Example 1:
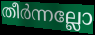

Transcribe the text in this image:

തീർന്നല്ലോ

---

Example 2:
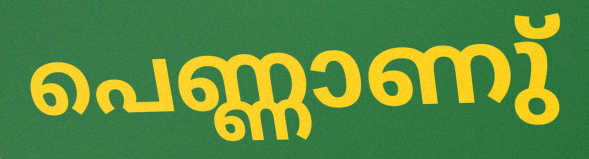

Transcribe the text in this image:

പെണ്ണാണു്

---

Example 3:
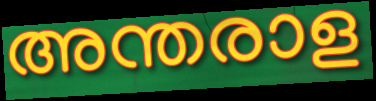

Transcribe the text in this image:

അന്തരാള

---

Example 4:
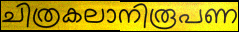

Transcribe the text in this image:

ചിത്രകലാനിരൂപണ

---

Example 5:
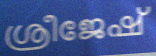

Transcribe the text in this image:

ശ്രീജേഷ്